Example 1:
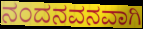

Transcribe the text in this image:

ನಂದನವನವಾಗಿ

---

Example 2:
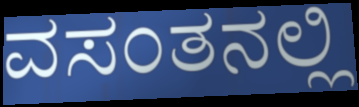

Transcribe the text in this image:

ವಸಂತನಲ್ಲಿ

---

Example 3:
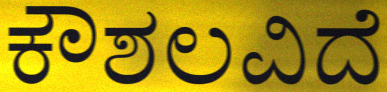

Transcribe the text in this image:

ಕೌಶಲವಿದೆ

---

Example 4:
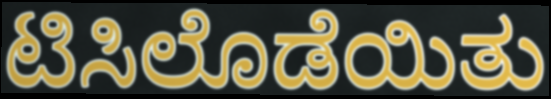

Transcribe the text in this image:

ಟಿಸಿಲೊಡೆಯಿತು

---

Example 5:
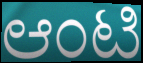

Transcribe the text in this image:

ಆಂಟಿ